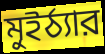
মুইঠ্যার